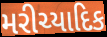
મરીચ્યાદિક